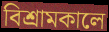
বিশ্রামকালে